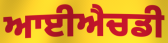
ਆਈਐਚਡੀ